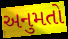
અનુમતો